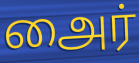
அைர்